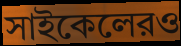
সাইকেলেরও